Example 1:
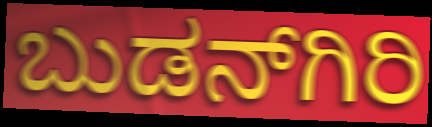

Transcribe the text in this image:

ಬುಡನ್‍ಗಿರಿ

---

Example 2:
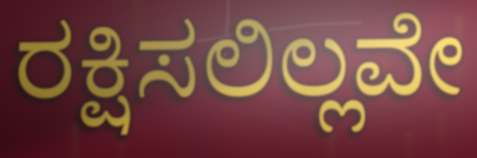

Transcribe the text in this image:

ರಕ್ಷಿಸಲಿಲ್ಲವೇ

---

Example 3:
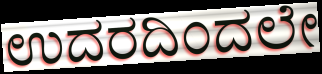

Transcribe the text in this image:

ಉದರದಿಂದಲೇ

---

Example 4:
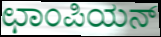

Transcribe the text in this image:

ಛಾಂಪಿಯನ್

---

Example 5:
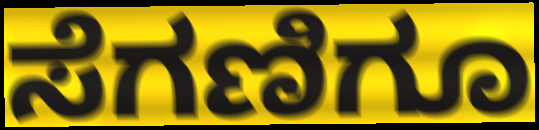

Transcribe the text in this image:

ಸೆಗಣಿಗೂ